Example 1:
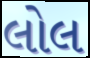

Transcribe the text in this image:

લોલ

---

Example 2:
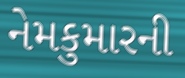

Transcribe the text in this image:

નેમકુમારની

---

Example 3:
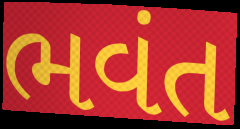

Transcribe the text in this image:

ભવંત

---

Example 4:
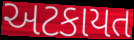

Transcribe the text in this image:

અટકાયત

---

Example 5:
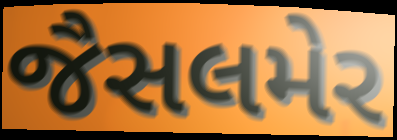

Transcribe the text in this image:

જૈસલમેર